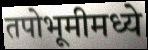
तपोभूमीमध्ये